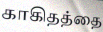
காகிதத்தை